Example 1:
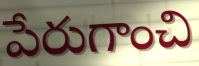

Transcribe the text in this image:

పేరుగాంచి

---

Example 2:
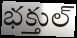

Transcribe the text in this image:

భక్తుల్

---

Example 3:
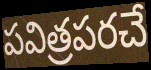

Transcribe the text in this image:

పవిత్రపరచే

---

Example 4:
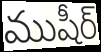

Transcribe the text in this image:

ముషీర్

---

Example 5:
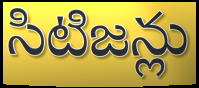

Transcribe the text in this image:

సిటిజన్లు